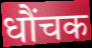
धौंचक